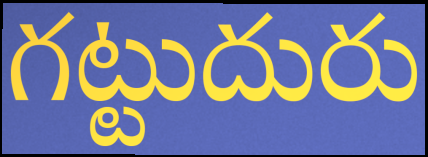
గట్టుదురు